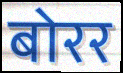
बोरर